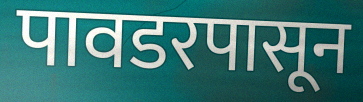
पावडरपासून